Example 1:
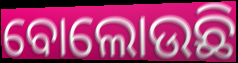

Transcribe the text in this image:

ବୋଲୋଉଛି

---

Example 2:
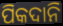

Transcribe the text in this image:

ପିକଦାନି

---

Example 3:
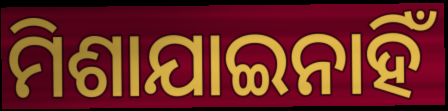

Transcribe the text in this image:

ମିଶାଯାଇନାହିଁ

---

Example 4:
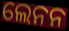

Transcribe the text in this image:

ଲେନନ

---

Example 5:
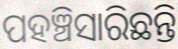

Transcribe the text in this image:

ପହଞ୍ଚିସାରିଛନ୍ତି